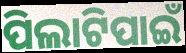
ପିଲାଟିପାଇଁ